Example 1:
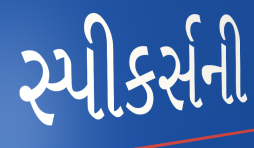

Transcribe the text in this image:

સ્પીકર્સની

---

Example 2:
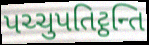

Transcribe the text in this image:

પચ્ચુપતિટ્ઠન્તિ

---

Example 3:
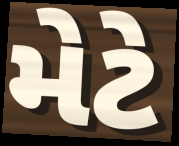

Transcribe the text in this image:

મેટે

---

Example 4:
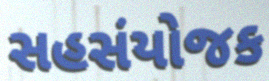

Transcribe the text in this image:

સહસંયોજક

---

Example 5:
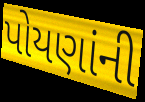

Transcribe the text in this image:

પોયણાંની